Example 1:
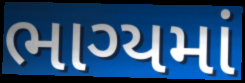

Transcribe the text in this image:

ભાગ્યમાં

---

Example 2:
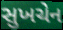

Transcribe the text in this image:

સુખચેન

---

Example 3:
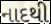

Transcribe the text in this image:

નાદથી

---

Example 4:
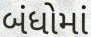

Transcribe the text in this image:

બંધોમાં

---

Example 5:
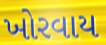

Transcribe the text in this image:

ખોરવાય